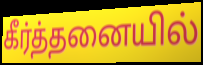
கீர்த்தனையில்